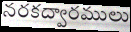
నరకద్వారములు